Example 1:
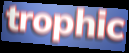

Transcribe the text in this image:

trophic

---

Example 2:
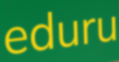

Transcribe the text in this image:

eduru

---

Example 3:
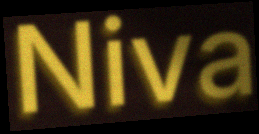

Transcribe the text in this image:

Niva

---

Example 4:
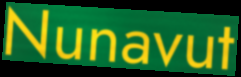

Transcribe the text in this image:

Nunavut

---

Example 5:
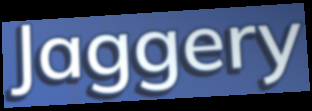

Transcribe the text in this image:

Jaggery